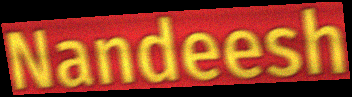
Nandeesh